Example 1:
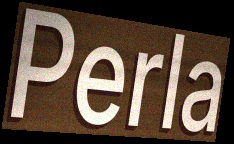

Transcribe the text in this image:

Perla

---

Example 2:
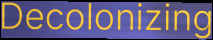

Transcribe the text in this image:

Decolonizing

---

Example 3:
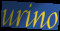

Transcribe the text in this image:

urino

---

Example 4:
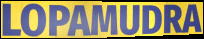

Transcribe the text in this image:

LOPAMUDRA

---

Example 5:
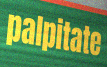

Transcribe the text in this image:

palpitate